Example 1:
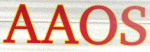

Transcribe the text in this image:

AAOS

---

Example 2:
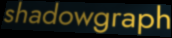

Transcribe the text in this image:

shadowgraph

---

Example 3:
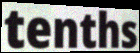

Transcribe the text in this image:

tenths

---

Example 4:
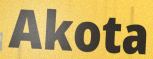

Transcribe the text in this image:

Akota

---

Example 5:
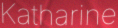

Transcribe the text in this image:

Katharine